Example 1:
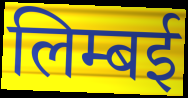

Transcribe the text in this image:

लिम्बई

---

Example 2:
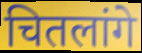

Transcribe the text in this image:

चितलांगे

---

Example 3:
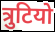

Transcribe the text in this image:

त्रुटियो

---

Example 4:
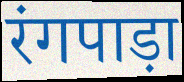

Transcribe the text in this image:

रंगपाड़ा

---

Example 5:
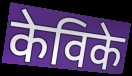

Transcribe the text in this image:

केविके